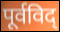
पूर्वविद्